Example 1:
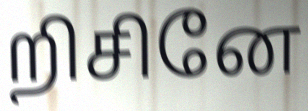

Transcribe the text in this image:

றிசினே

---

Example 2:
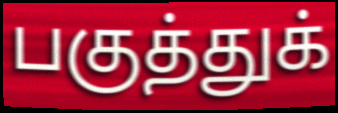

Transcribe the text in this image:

பகுத்துக்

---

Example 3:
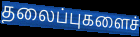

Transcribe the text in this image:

தலைப்புகளைச்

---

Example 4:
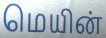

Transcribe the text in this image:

மெயின்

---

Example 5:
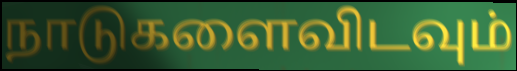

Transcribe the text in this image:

நாடுகளைவிடவும்